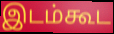
இடம்கூட